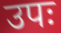
उपः